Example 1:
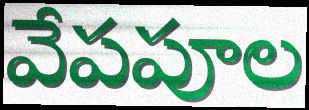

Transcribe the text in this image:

వేపపూల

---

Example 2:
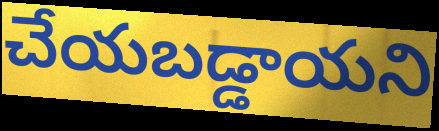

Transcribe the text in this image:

చేయబడ్డాయని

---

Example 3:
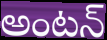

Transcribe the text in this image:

అంటన్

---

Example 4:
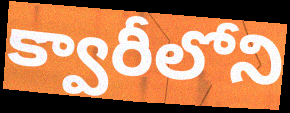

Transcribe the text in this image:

క్వారీలోని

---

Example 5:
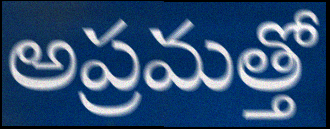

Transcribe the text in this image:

అప్రమత్తో